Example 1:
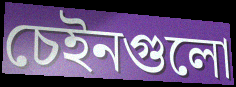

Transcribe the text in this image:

চেইনগুলো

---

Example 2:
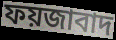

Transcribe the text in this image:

ফয়জাবাদ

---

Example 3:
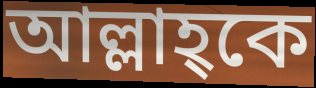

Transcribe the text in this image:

আল্লাহ্কে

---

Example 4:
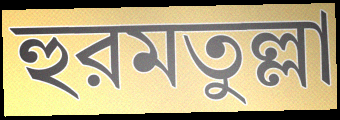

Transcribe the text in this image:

হুরমতুল্লা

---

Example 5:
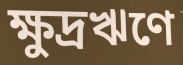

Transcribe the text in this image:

ক্ষুদ্রঋণে